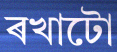
ৰখাটো